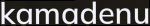
kamadenu